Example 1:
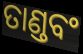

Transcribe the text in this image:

ତାଣ୍ଡବଂ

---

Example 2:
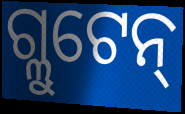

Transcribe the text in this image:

ଗ୍ଲୁଟେନ୍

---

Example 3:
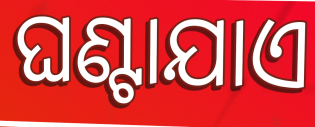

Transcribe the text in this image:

ଘଣ୍ଟାଯାଏ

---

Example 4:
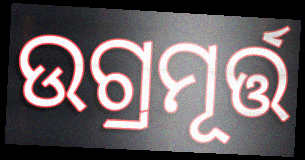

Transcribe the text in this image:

ଉଗ୍ରମୂର୍ତ୍ତ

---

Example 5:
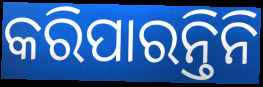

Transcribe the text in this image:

କରିପାରନ୍ତିନି